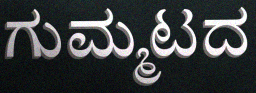
ಗುಮ್ಮಟದ